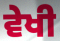
ਵੇਖੀ